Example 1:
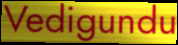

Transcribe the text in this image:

Vedigundu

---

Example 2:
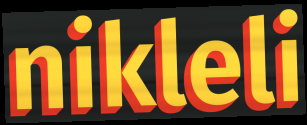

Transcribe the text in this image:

nikleli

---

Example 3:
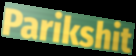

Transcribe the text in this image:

Parikshit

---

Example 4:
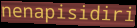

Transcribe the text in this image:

nenapisidiri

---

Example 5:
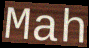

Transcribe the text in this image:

Mah